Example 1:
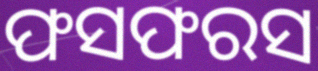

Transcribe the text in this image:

ଫସଫରସ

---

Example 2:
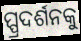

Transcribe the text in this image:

ପ୍ପ୍ରଦର୍ଶନକୁ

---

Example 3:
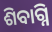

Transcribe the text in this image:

ଶିବାଗ୍ନି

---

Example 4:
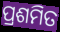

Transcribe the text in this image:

ପ୍ରଶମିତ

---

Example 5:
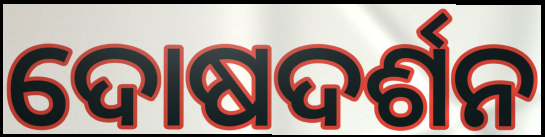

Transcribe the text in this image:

ଦୋଷଦର୍ଶନ